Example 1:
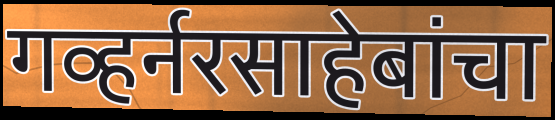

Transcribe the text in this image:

गव्हर्नरसाहेबांचा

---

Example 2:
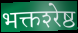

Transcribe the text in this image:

भक्तश्रेष्ठ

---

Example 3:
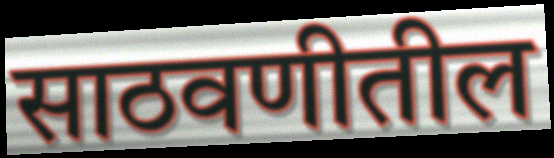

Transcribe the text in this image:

साठवणीतील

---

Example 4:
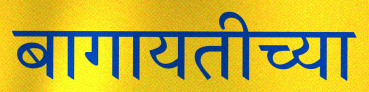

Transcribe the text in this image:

बागायतीच्या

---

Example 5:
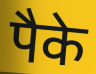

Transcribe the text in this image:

पैके